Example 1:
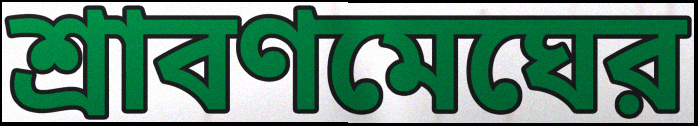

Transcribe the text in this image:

শ্রাবণমেঘের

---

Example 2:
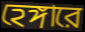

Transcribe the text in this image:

হেঙ্গারে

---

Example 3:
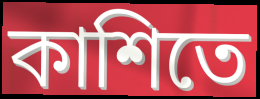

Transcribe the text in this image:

কাশিতে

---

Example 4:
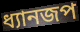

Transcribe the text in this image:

ধ্যানজপ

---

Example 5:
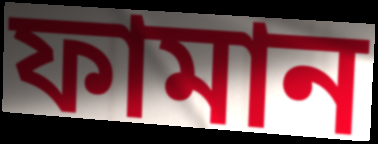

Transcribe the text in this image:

ফামান